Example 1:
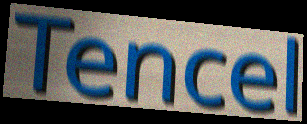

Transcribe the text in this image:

Tencel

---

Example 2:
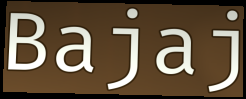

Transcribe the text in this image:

Bajaj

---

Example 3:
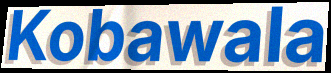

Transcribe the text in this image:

Kobawala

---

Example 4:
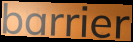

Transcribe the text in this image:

barrier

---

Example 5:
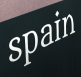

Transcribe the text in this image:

spain